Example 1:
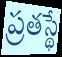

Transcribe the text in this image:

ప్రతస్థే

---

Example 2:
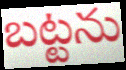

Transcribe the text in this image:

బట్టను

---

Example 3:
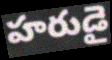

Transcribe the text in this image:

హరుడై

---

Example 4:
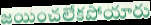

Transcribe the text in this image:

జయించలేకపోయారు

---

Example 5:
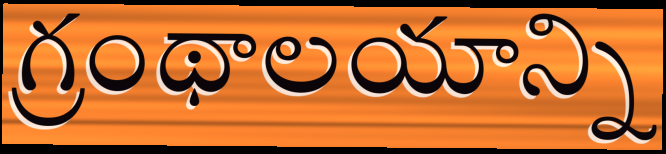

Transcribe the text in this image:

గ్రంథాలయాన్ని